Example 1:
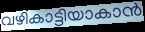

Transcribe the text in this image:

വഴികാട്ടിയാകാൻ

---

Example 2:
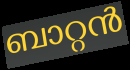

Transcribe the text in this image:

ബാറ്റൻ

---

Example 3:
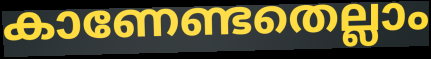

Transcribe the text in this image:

കാണേണ്ടതെല്ലാം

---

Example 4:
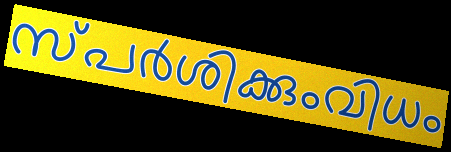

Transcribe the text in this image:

സ്പർശിക്കുംവിധം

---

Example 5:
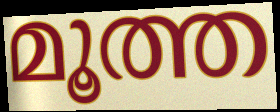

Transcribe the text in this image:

മൂത്ത